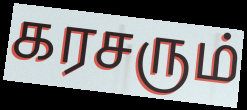
கரசரும்